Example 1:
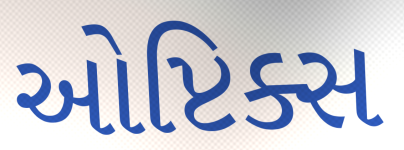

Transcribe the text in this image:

ઓપ્ટિક્સ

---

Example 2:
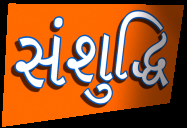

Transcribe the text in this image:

સંશુદ્ધિ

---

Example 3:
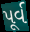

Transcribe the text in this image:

પૂર્વ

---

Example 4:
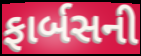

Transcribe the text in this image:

ફાર્બસની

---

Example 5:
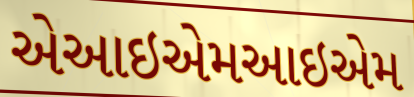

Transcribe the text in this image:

એઆઇએમઆઇએમ